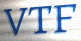
VTF